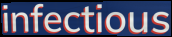
infectious